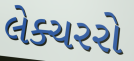
લેક્ચરરો